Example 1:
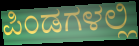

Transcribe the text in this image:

ಪಿಂಡಗಳಲ್ಲಿ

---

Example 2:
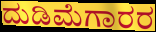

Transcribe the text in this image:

ದುಡಿಮೆಗಾರರ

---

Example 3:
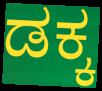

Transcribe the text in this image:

ಡಕ್ಕ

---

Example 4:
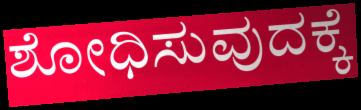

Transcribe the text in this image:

ಶೋಧಿಸುವುದಕ್ಕೆ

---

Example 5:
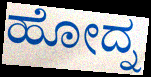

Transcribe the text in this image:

ಹೋದ್ನ